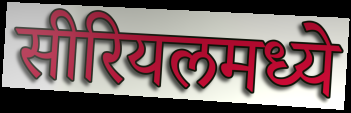
सीरियलमध्ये